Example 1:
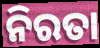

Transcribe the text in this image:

ନିରତା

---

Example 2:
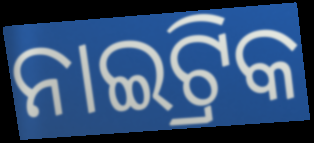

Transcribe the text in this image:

ନାଇଟ୍ରିକ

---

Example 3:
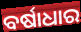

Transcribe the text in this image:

ବର୍ଷାଧାର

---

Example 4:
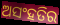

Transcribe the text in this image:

ଅସଂହତିର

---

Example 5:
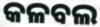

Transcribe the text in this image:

କଳବଲ